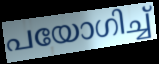
പയോഗിച്ച്